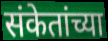
संकेतांच्या